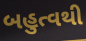
બહુત્વથી